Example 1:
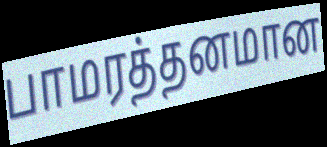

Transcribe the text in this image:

பாமரத்தனமான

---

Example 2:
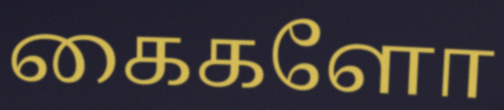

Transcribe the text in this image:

கைகளோ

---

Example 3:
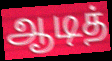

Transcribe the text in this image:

ஆடித்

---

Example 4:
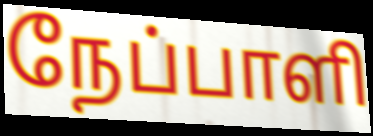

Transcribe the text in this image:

நேப்பாளி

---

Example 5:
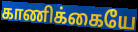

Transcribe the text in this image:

காணிக்கையே